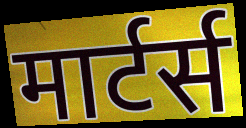
मार्टर्स